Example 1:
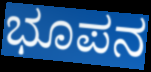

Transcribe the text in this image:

ಭೂಪನ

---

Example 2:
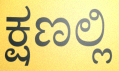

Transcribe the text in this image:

ಕ್ಷಣಲ್ಲಿ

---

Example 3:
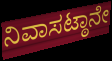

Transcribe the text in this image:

ನಿವಾಸಟ್ಠಾನೇ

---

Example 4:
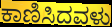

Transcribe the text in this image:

ಕಾಣಿಸಿದವಳು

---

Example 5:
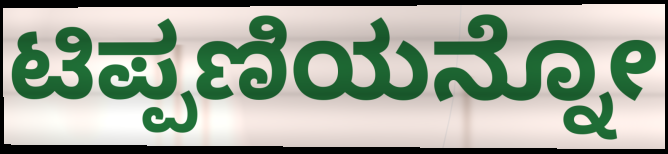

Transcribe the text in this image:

ಟಿಪ್ಪಣಿಯನ್ನೋ